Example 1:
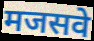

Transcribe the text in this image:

मजसवे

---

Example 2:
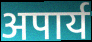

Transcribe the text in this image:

अपार्य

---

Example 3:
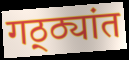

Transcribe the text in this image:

गठ्ठ्यांत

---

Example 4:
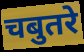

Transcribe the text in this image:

चबुतरे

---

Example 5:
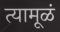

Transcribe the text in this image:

त्यामूळं